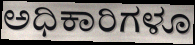
ಅಧಿಕಾರಿಗಳೂ